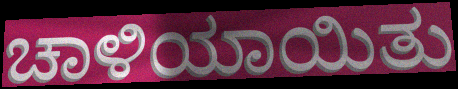
ಚಾಳಿಯಾಯಿತು